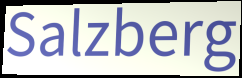
Salzberg